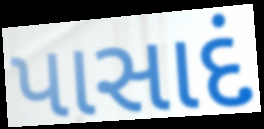
પાસાદં